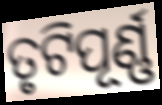
ତୃଟିପୂର୍ଣ୍ଣ